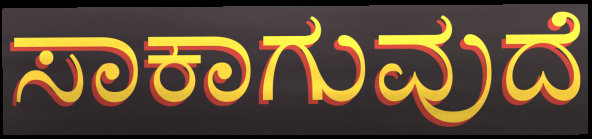
ಸಾಕಾಗುವುದೆ